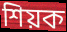
শিয়ক